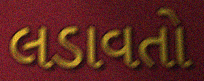
લડાવતો